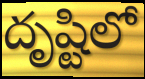
దృష్టిలో